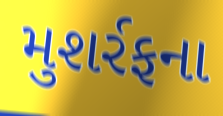
મુશર્રફના